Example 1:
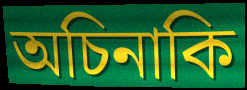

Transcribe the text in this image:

অচিনাকি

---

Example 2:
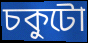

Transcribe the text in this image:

চকুটো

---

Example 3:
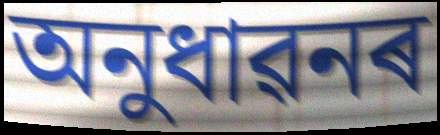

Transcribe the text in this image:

অনুধাৱনৰ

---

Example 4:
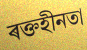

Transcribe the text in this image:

ৰক্তহীনতা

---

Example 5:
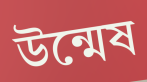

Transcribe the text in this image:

উন্মেষ